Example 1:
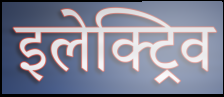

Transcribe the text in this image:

इलेक्ट्रिव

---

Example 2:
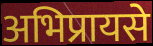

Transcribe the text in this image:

अभिप्रायसे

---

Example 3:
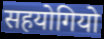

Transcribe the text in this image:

सहयोगियो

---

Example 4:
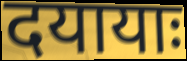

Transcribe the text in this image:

दयायाः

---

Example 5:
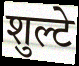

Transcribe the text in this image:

शुल्टे